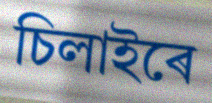
চিলাইৰে